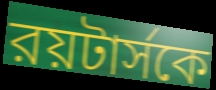
রয়টার্সকে